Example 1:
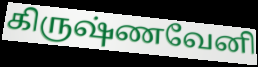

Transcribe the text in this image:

கிருஷ்ணவேனி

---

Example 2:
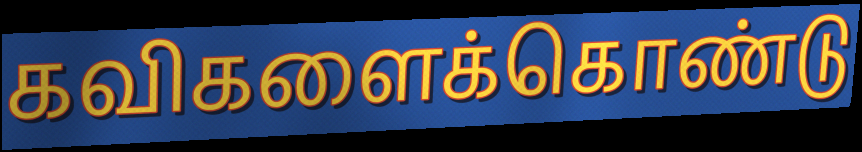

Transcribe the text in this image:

கவிகளைக்கொண்டு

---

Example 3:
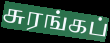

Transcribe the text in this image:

சுரங்கப்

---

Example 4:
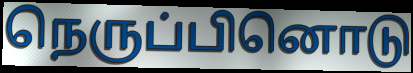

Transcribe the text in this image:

நெருப்பினொடு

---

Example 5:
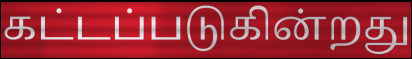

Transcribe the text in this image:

கட்டப்படுகின்றது